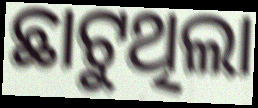
ଛାଟୁଥିଲା